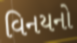
વિનયનો